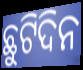
ଛୁଟିଦିନ